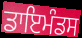
ਡਾਇਮੰਡਸ